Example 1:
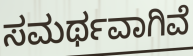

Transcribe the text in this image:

ಸಮರ್ಥವಾಗಿವೆ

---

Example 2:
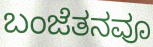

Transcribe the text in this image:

ಬಂಜೆತನವೂ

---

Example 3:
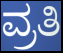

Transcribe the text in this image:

ವ್ರತಿ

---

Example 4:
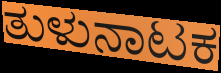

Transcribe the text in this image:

ತುಳುನಾಟಕ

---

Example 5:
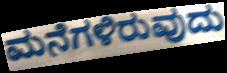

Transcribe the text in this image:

ಮನೆಗಳಿರುವುದು